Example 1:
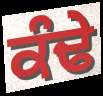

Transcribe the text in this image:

ਕੰਢੇ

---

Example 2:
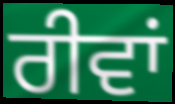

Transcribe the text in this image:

ਰੀਵਾਂ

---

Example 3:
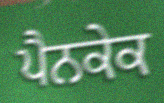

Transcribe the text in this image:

ਪੈਨਕੇਕ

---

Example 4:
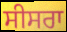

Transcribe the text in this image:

ਸੀਸਰਾ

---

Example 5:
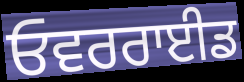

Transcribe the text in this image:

ਓਵਰਰਾਈਡ